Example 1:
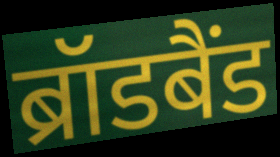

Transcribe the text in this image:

ब्रॉडबैंड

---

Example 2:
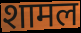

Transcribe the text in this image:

शामल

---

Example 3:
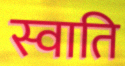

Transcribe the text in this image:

स्वाति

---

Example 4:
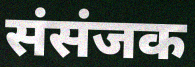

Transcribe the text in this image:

संसंजक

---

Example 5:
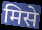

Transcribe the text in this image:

मिसे